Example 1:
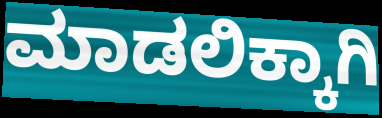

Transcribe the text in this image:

ಮಾಡಲಿಕ್ಕಾಗಿ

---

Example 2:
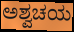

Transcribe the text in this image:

ಅಶ್ವಚಯ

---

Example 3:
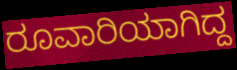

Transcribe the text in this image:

ರೂವಾರಿಯಾಗಿದ್ದ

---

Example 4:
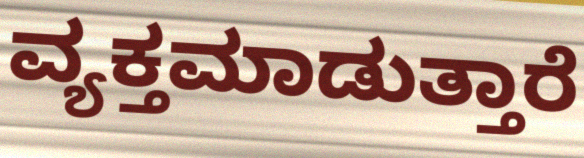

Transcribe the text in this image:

ವ್ಯಕ್ತಮಾಡುತ್ತಾರೆ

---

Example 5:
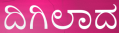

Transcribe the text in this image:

ದಿಗಿಲಾದ